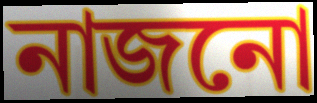
নাজনো